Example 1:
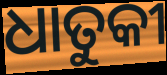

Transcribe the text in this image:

ଧାତୁକୀ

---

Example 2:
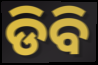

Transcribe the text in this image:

ଡିବି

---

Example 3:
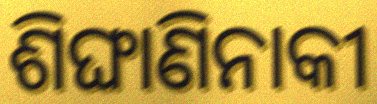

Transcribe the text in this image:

ଶିଙ୍ଘାଣିନାକୀ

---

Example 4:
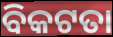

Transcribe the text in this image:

ବିକଟତା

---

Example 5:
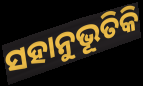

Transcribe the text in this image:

ସହାନୁଭୂତିକି